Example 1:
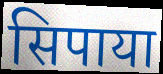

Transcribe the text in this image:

सिपाया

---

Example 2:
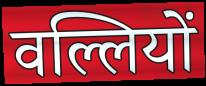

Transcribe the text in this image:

वल्लियों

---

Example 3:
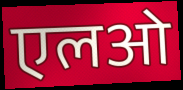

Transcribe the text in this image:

एलओ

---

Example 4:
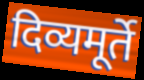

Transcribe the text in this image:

दिव्यमूर्ते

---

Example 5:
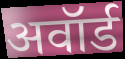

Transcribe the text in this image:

अवॉर्ड